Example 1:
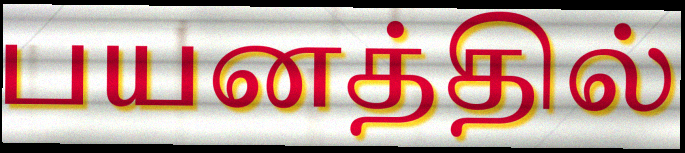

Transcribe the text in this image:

பயனத்தில்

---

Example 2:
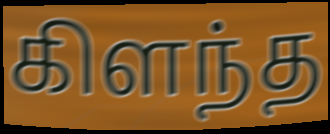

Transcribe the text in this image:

கிளந்த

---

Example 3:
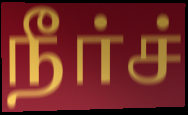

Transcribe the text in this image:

நீர்ச்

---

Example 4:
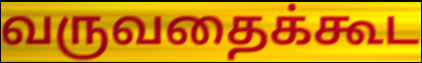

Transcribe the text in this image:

வருவதைக்கூட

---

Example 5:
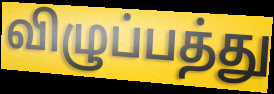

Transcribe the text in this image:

விழுப்பத்து